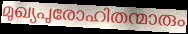
മുഖ്യപുരോഹിതന്മാരും